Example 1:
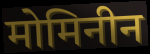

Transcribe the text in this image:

मोमिनीन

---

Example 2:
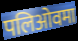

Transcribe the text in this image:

पलिओवमा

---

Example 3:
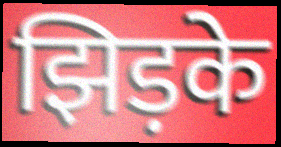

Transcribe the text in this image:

झिड़के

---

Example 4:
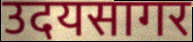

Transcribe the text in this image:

उदयसागर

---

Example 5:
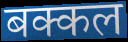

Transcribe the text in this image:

बक्कल